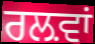
ਰਲ਼ਵਾਂ